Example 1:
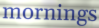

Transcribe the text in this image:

mornings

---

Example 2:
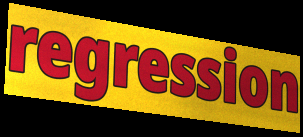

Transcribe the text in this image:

regression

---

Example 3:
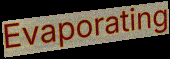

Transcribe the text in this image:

Evaporating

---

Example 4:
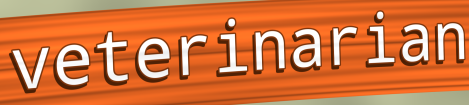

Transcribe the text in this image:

veterinarian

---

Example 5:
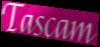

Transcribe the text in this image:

Tascam